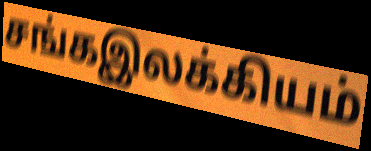
சங்கஇலக்கியம்